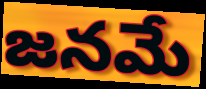
జనమే